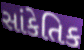
સાંકેતિક